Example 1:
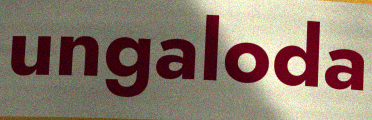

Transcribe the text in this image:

ungaloda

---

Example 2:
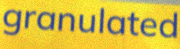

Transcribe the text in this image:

granulated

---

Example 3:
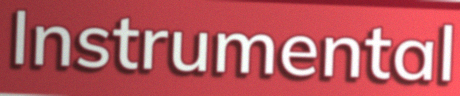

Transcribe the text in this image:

Instrumental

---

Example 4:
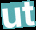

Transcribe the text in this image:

ut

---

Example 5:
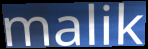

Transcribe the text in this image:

malik